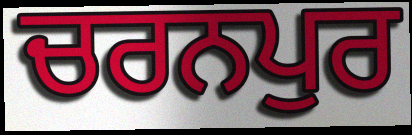
ਚਰਨਪੁਰ